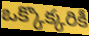
ఒక్కొక్కరికీ